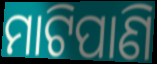
ମାଟିପାଣି